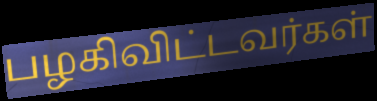
பழகிவிட்டவர்கள்